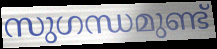
സുഗന്ധമുണ്ട്